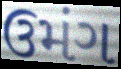
ઉમંગ